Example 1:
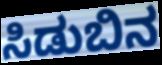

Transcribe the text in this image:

ಸಿಡುಬಿನ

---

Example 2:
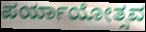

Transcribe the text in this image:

ಪರ್ಯಾಯೋತ್ಸವ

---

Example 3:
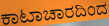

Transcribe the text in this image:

ಕಾಟಾಚಾರದಿಂದ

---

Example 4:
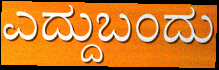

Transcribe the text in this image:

ಎದ್ದುಬಂದು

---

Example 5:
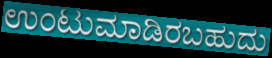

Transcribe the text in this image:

ಉಂಟುಮಾಡಿರಬಹುದು